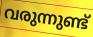
വരുന്നുണ്ട്